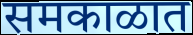
समकाळात